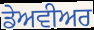
ਡੇਅਵੀਅਰ